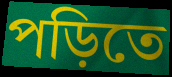
পড়িতে